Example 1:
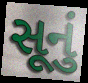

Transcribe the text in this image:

સૂનું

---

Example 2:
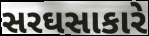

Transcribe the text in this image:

સરઘસાકારે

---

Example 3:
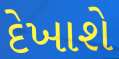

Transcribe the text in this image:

દેખાશે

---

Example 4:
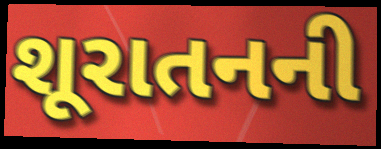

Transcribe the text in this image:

શૂરાતનની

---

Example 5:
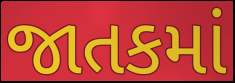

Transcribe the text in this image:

જાતકમાં